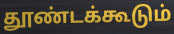
தூண்டக்கூடும்